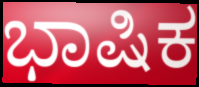
ಭಾಷಿಕ